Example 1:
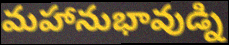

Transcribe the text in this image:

మహానుభావుడ్ని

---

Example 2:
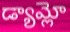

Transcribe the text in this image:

డ్యామ్లో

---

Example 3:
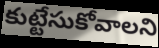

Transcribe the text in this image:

కుట్టేసుకోవాలని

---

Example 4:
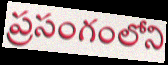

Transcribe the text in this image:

ప్రసంగంలోని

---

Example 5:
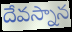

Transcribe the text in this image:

దేవస్నాన